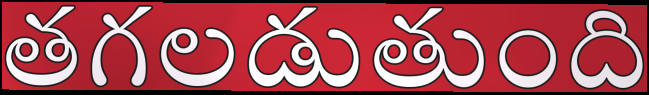
తగలడుతుంది